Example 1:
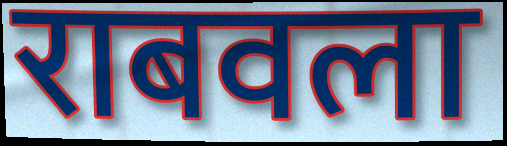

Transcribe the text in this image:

राबवला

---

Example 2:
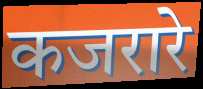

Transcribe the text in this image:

कजरारे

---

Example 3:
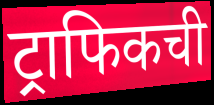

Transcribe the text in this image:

ट्राफिकची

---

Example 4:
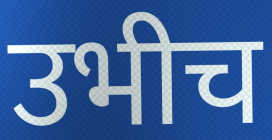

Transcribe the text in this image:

उभीच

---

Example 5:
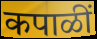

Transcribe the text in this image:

कपाळीं